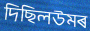
দিছিলউমৰ